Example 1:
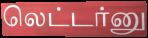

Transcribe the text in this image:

லெட்டர்னு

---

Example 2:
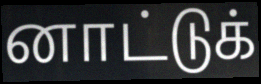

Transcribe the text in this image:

னாட்டுக்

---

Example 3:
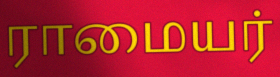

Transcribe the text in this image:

ராமையர்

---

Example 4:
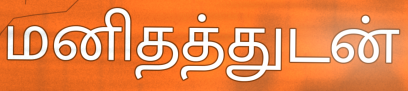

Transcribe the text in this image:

மனிதத்துடன்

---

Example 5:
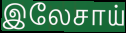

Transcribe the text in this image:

இலேசாய்